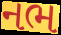
નભ